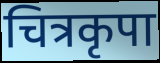
चित्रकृपा